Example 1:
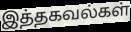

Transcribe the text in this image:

இத்தகவல்கள்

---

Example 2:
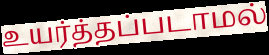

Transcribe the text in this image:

உயர்த்தப்படாமல்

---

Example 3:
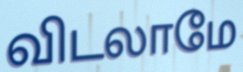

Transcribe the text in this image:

விடலாமே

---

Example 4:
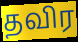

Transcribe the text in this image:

தவிர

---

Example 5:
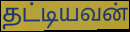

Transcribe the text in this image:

தட்டியவன்